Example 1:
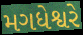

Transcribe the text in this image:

મગધેશ્વરે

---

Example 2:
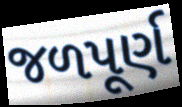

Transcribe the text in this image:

જળપૂર્ણ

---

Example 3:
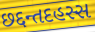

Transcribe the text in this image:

છદ્દન્તદહસ્સ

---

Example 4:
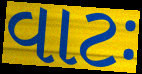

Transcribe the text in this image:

વાટઃ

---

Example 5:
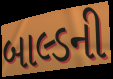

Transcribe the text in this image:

બાલ્ડની